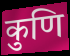
कुणि